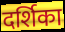
दर्शिका